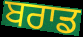
ਬਰਾਡ